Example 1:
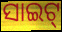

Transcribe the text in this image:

ସାଇଟ୍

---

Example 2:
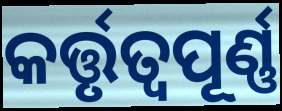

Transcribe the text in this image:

କର୍ତ୍ତୃତ୍ୱପୂର୍ଣ୍ଣ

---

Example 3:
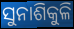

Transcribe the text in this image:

ସୁନାଶିକୁଳି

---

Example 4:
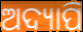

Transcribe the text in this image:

ଅଦ୍ୟାପି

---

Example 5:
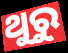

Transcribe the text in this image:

ଥୁରୁ